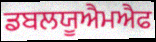
ਡਬਲਯੂਐਮਐਫ